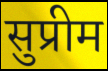
सुप्रीम